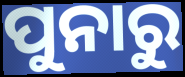
ପୁନାରୁ